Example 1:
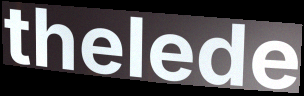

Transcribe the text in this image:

thelede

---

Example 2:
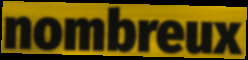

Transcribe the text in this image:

nombreux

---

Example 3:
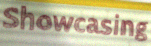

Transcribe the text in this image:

Showcasing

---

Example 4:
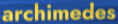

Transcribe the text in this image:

archimedes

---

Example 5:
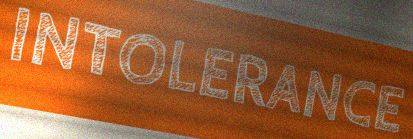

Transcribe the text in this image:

INTOLERANCE